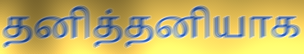
தனித்தனியாக